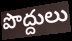
పొద్దులు